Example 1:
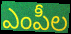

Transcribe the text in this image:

ఎంపీల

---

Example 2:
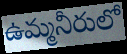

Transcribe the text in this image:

ఉమ్మనీరులో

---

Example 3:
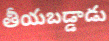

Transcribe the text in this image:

తీయబడ్డాడు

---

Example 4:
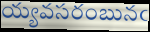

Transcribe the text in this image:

య్యవసరంబునఁ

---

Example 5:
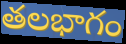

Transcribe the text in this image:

తలభాగం